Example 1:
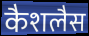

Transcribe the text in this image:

कैशलैस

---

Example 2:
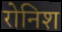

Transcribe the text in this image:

रोनिश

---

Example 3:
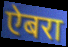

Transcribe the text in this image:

ऐबरा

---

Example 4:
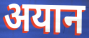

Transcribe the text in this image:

अयान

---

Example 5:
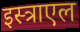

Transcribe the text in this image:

इस्त्राएल